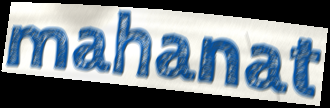
mahanat